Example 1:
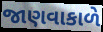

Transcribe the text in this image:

જાણવાકાળે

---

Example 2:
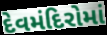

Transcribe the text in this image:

દેવમંદિરોમાં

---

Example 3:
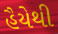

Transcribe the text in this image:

હૈયેથી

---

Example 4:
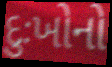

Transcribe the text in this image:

દુઃખોનો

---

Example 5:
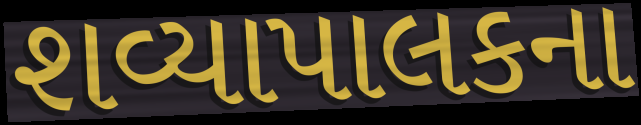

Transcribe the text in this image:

શવ્યાપાલકના